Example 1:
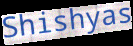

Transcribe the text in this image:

Shishyas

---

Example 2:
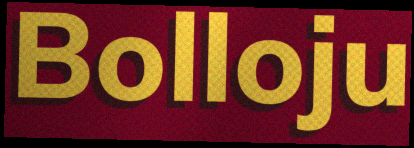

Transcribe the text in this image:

Bolloju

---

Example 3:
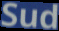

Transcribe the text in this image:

Sud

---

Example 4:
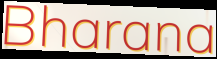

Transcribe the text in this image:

Bharana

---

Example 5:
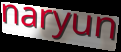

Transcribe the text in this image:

naryun